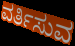
ವರ್ತಿಸುವ